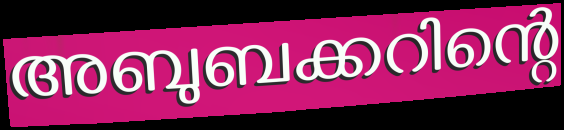
അബുബക്കറിന്റെ